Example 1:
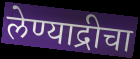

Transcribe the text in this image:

लेण्याद्रीचा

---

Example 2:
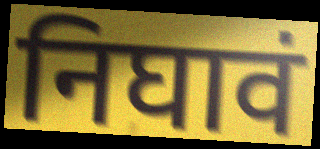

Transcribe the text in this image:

निघावं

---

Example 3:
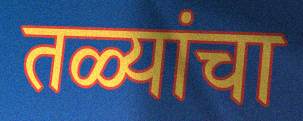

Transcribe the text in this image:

तळ्यांचा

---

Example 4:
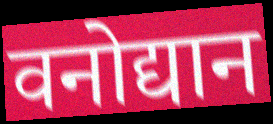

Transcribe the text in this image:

वनोद्यान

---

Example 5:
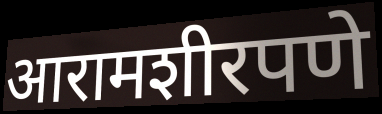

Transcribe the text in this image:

आरामशीरपणे